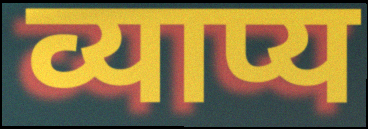
व्याप्य